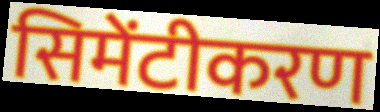
सिमेंटीकरण